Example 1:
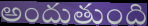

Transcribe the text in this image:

అందుతుంది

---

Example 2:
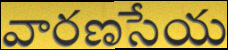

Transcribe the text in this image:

వారణసేయ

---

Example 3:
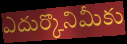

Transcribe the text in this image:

ఎదుర్కొనిమీకు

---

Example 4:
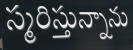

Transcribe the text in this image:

స్మరిస్తున్నాను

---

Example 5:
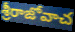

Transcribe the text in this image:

శ్రీరాజోవాచ